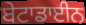
ਬੇਟਾਡਾਈਨ